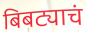
बिबट्याचं